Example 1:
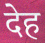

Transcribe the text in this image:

देह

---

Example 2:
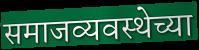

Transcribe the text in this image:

समाजव्यवस्थेच्या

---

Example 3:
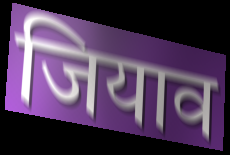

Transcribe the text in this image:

जियाव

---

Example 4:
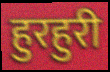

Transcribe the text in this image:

हुरहुरी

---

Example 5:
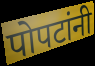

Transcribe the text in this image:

पोपटांनी